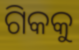
ଗିକକୁ